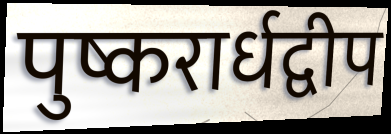
पुष्करार्धद्वीप